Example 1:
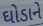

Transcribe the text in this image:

ઘોડાને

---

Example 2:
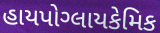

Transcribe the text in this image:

હાયપોગ્લાયકેમિક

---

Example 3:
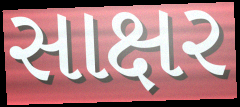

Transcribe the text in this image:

સાક્ષર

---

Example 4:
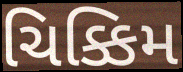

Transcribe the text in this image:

ચિક્કિમ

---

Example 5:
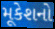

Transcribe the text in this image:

મૂકેશનો